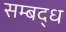
सम्बद्ध